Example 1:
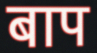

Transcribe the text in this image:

बाप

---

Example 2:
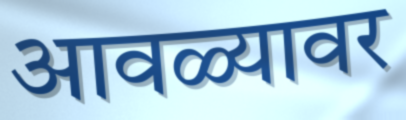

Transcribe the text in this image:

आवळ्यावर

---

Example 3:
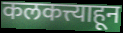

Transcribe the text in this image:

कलकत्त्याहून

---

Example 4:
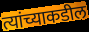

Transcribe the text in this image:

त्यांच्याकडील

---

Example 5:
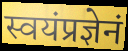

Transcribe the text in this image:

स्वयंप्रज्ञेनं